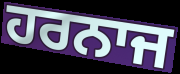
ਹਰਨਾਜ